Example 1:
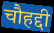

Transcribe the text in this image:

चौहद्दी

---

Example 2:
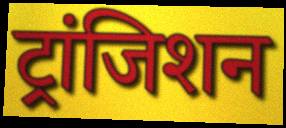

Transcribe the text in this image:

ट्रांजिशन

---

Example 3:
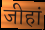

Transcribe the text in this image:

जीहां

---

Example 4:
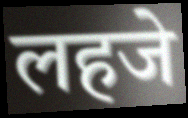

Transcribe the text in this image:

लहजे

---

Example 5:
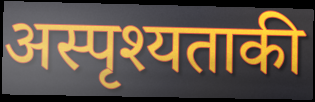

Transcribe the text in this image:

अस्पृश्यताकी